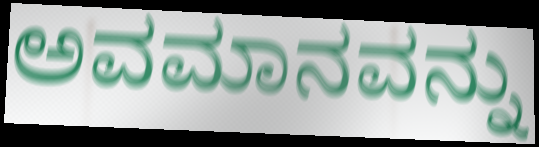
ಅವಮಾನವನ್ನು